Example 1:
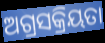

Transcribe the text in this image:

ଅଗ୍ରସକ୍ରିୟତା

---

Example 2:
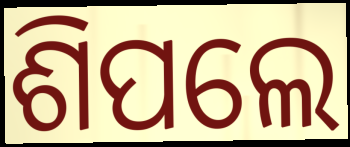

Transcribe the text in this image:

ଶିପଲେ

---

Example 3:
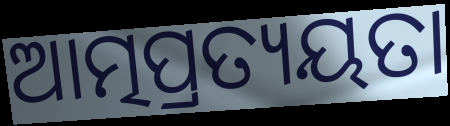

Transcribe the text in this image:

ଆତ୍ମପ୍ରତ୍ୟୟତା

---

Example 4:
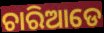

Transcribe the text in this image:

ଚାରିଆଡେ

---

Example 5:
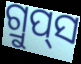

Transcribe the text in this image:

ଗ୍ରୁପ୍‌ସ